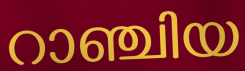
റാഞ്ചിയ